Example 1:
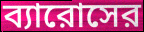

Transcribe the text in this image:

ব্যারোসের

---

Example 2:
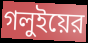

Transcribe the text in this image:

গলুইয়ের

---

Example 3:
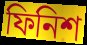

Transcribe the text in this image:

ফিনিশ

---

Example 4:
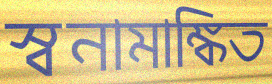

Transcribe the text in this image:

স্বনামাঙ্কিত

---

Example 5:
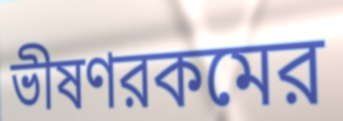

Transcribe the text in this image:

ভীষণরকমের